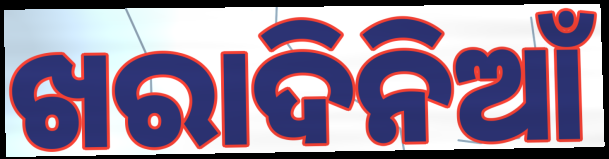
ଖରାଦିନିଆଁ